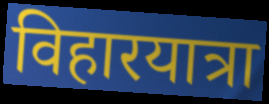
विहारयात्रा